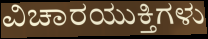
ವಿಚಾರಯುಕ್ತಿಗಳು